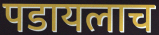
पडायलाच